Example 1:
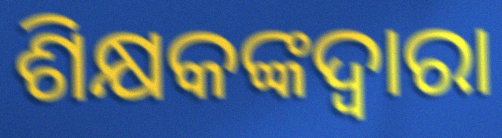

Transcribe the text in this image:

ଶିକ୍ଷକଙ୍କଦ୍ଵାରା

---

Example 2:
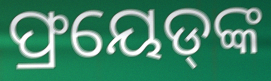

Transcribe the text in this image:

ଫ୍ରୟେଡ୍‍ଙ୍କ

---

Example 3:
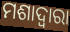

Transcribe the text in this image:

ମଶାଦ୍ୱାରା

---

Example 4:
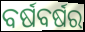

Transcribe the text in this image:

ବର୍ଷବର୍ଷର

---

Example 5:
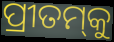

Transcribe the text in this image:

ପ୍ରୀତମ୍‌କୁ